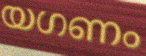
യഗണം